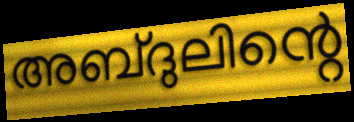
അബ്ദുലിന്റെ